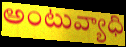
అంటువ్యాధి